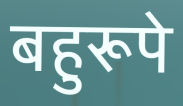
बहुरूपे